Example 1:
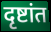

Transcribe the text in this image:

दृष्टांत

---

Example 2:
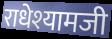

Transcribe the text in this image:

राधेश्यामजी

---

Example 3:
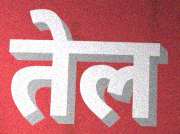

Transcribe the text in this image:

तेल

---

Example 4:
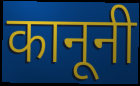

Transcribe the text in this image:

कानूनी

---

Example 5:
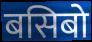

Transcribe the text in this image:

बसिबो